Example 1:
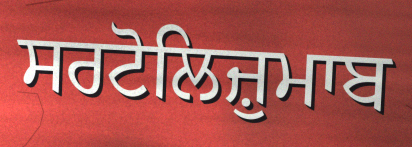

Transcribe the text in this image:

ਸਰਟੋਲਿਜ਼ੁਮਾਬ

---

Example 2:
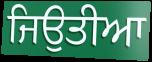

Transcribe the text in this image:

ਜਿਉਤੀਆ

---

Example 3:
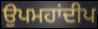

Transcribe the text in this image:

ਉਪਮਹਾਂਦੀਪ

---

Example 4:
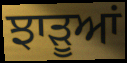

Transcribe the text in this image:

ਝਾੜੂਆਂ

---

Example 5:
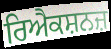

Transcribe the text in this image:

ਰਿਐਕਸ਼ਨਜ਼